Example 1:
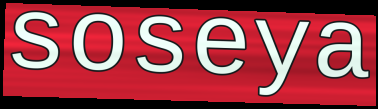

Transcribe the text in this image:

soseya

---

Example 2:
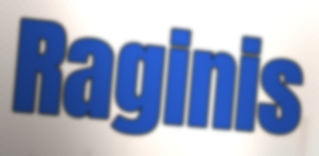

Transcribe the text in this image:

Raginis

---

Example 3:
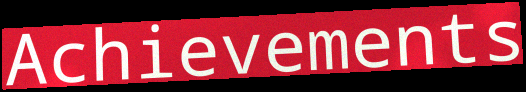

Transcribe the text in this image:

Achievements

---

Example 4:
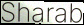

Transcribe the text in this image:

Sharab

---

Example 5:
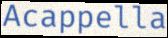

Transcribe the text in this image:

Acappella